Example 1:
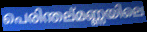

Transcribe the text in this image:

പെരിന്തല്മണ്ണയിലെ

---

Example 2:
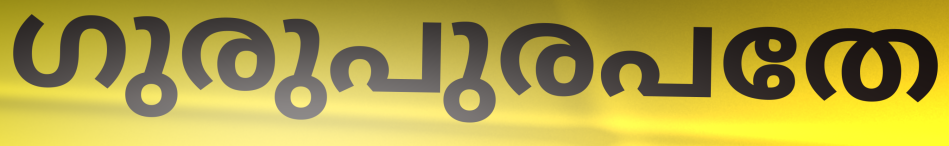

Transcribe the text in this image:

ഗുരുപുരപതേ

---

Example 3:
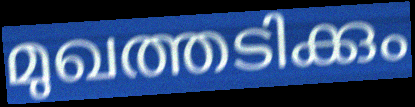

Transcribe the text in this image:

മുഖത്തടിക്കും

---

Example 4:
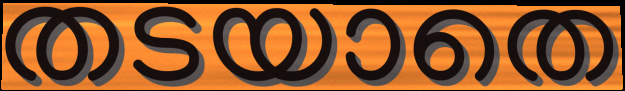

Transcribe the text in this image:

തടയാതെ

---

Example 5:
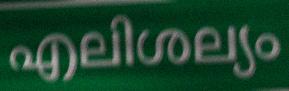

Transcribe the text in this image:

എലിശല്യം